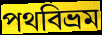
পথবিভ্রম